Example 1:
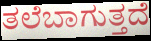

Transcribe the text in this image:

ತಲೆಬಾಗುತ್ತದೆ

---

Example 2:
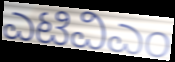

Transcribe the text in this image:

ಎಟಿವಿಎಂ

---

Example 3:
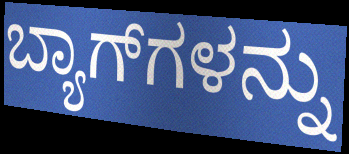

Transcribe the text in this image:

ಬ್ಯಾಗ್‌ಗಳನ್ನು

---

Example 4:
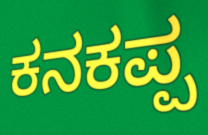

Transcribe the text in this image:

ಕನಕಪ್ಪ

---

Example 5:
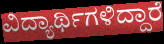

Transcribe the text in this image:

ವಿದ್ಯಾರ್ಥಿಗಳಿದ್ದಾರೆ